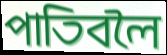
পাতিবলৈ